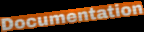
Documentation